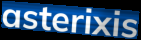
asterixis